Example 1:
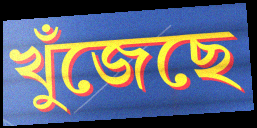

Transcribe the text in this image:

খুঁজেছে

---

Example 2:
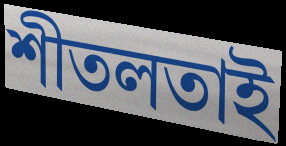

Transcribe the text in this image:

শীতলতাই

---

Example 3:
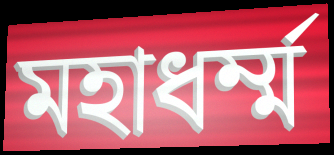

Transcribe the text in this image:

মহাধর্ম্ম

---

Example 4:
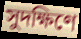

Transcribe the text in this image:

সুদক্ষিণে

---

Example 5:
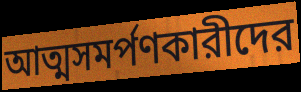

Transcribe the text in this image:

আত্মসমর্পণকারীদের